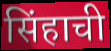
सिंहाची